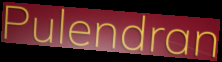
Pulendran